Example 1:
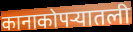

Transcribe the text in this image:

कानाकोपऱ्यातली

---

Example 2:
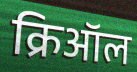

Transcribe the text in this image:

क्रिऑल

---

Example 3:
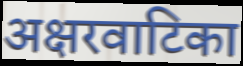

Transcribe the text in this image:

अक्षरवाटिका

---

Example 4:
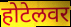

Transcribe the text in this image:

होटेलवर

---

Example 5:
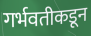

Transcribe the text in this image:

गर्भवतीकडून